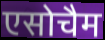
एसोचैम